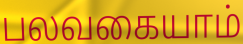
பலவகையாம்